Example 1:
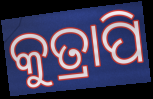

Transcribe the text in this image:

କୁତ୍ରାପି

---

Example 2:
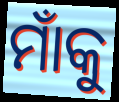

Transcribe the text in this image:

ମାଁକୁ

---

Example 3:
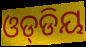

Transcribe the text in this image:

ଓଡ୍‌ଡିୟ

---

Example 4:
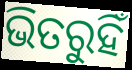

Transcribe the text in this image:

ଭିତରୁହିଁ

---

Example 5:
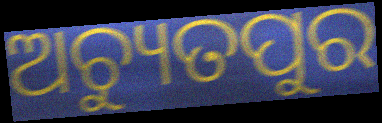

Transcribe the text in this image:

ଅଚ୍ୟୁତପୁର